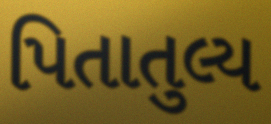
પિતાતુલ્ય